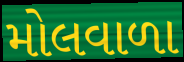
મોલવાળા